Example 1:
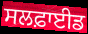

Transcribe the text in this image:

ਸਲਫ਼ਾਈਡ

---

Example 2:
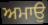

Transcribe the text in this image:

ਅਮਾਉ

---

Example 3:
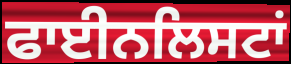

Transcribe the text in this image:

ਫਾਈਨਲਿਸਟਾਂ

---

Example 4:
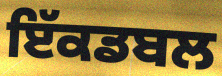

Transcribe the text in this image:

ਇੱਕਡਬਲ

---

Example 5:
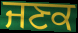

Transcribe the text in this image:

ਜਣਕ